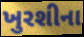
ખુરશીના